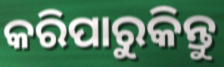
କରିପାରୁକିନ୍ତୁ